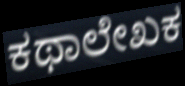
ಕಥಾಲೇಖಕ